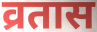
व्रतास